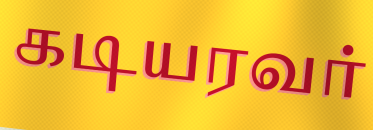
கடியரவர்